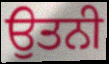
ਉਤਨੀ